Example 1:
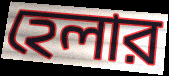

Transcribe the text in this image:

হেলার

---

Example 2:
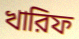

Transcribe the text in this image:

খারিফ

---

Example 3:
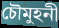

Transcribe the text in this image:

চৌমুহনী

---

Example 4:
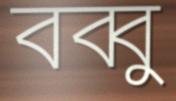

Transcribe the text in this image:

বব্বু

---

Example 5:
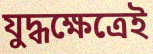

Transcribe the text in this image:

যুদ্ধক্ষেত্রেই